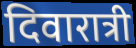
दिवारात्री